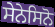
ਸੇਨੇਸਿਨੋ